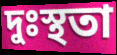
দুঃস্থতা